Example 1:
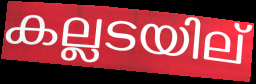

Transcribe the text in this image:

കല്ലടയില്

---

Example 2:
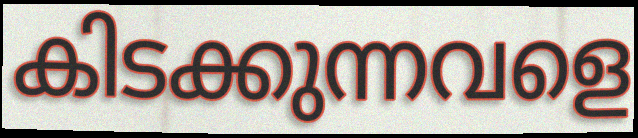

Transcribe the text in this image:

കിടക്കുന്നവളെ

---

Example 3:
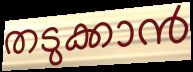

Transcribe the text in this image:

തടുക്കാൻ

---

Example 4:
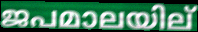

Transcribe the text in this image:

ജപമാലയില്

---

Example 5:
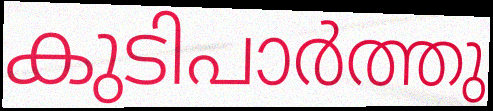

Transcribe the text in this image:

കുടിപാർത്തു